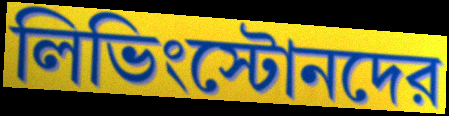
লিভিংস্টোনদের